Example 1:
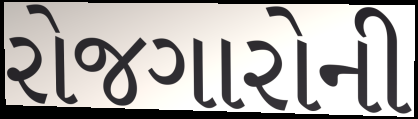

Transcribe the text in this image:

રોજગારોની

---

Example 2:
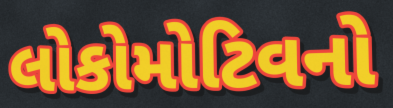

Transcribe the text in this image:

લોકોમોટિવનો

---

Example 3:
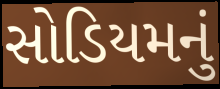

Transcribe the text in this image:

સોડિયમનું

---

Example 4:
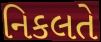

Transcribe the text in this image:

નિકલતે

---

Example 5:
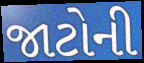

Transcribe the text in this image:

જાટોની